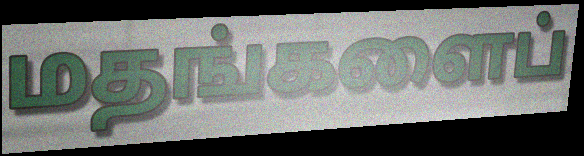
மதங்களைப்